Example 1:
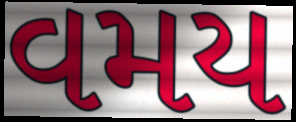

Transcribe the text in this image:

વમય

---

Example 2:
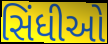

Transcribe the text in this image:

સિંધીઓ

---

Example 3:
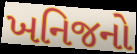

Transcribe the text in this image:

ખનિજનો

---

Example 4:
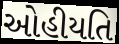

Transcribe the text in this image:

ઓહીયતિ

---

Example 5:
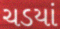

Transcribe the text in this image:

ચડયાં